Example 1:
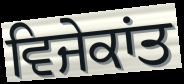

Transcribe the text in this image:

ਵਿਜੇਕਾਂਤ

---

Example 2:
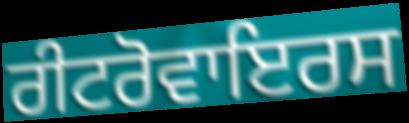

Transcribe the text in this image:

ਰੀਟਰੋਵਾਇਰਸ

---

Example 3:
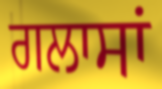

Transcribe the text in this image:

ਗਲਾਸਾਂ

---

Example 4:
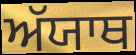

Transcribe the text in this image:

ਅੱਯਾਥ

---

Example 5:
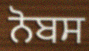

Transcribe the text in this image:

ਨੋਬਸ